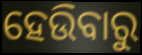
ହେଉିବାରୁ